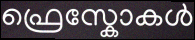
ഫ്രെസ്കോകൾ